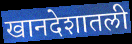
खानदेशातली